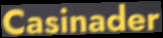
Casinader